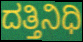
ದತ್ತಿನಿಧಿ